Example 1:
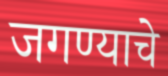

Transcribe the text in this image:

जगण्याचे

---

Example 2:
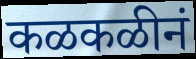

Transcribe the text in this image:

कळकळीनं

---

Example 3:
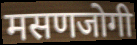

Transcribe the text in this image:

मसणजोगी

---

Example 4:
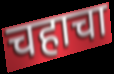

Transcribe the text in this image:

चहाचा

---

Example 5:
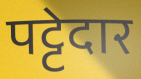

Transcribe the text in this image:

पट्टेदार